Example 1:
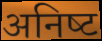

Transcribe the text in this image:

अनिष्‍ट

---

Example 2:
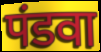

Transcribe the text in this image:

पंडवा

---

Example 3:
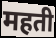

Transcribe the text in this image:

महती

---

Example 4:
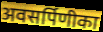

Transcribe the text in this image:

अवसर्पिणीका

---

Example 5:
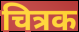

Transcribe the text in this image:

चित्रक